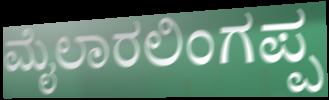
ಮೈಲಾರಲಿಂಗಪ್ಪ